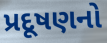
પ્રદૂષણનો